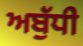
ਅਬੁੱਧੀ